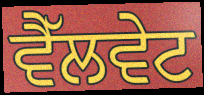
ਵੈੱਲਵੇਟ